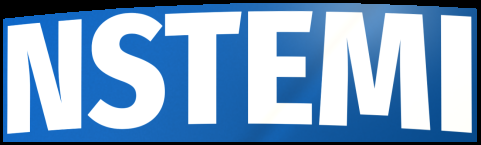
NSTEMI